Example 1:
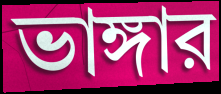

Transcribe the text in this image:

ভাঙ্গার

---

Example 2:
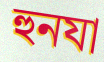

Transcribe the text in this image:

হুনযা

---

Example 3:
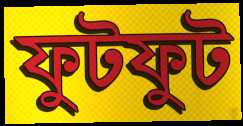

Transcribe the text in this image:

ফুটফুট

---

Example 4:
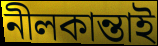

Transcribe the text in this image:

নীলকান্তাই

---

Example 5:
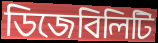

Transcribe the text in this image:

ডিজেবিলিটি